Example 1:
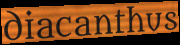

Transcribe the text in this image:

diacanthus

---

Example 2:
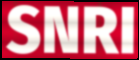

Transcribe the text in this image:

SNRI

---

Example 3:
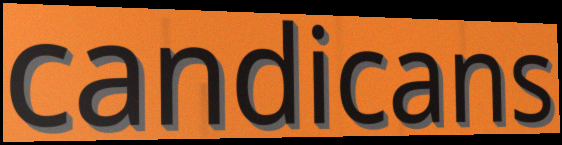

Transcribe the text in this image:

candicans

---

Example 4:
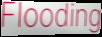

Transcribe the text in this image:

Flooding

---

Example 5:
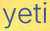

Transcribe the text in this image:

yeti